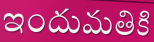
ఇందుమతికి